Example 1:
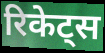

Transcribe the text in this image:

रिकेट्स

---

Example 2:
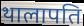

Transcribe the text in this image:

थालापति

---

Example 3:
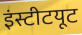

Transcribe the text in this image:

इंस्टीटयूट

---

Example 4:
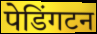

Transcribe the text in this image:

पेडिंगटन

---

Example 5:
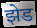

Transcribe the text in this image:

झेड